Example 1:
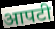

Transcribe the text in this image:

आपटी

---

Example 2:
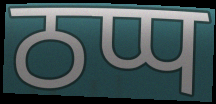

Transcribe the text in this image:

ठप्प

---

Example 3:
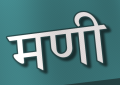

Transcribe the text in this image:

मणी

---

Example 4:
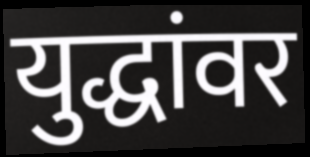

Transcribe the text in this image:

युद्धांवर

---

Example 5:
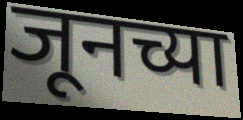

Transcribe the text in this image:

जूनच्या